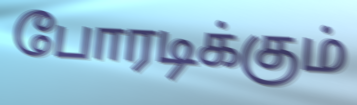
போரடிக்கும்